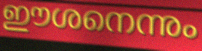
ഈശനെന്നും